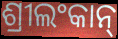
ଶ୍ରୀଲଂକାନ୍